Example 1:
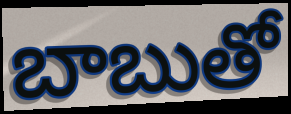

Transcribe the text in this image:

బాబుతో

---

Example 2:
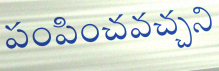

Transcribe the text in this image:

పంపించవచ్చని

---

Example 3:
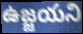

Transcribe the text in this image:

ఉజ్జయని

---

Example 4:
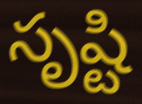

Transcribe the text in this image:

సృష్టి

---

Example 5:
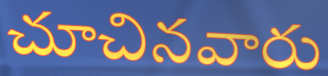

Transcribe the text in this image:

చూచినవారు